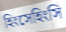
হিংসেহিংসি